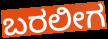
ಬರಲೀಗ